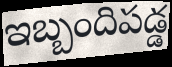
ఇబ్బందిపడ్డ